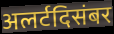
अलर्टदिसंबर